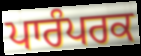
ਪਾਰੰਪਰਕ